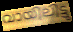
വായിലിട്ടു